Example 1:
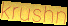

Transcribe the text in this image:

krushn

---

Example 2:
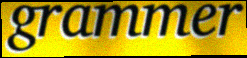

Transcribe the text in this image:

grammer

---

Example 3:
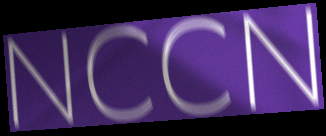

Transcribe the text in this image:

NCCN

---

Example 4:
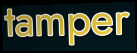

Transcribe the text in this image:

tamper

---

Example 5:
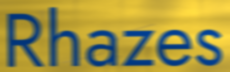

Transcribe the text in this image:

Rhazes